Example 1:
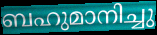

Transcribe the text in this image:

ബഹുമാനിച്ചു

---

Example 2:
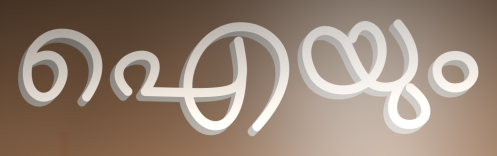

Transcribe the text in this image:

ഐയും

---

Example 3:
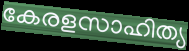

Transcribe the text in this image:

കേരളസാഹിത്യ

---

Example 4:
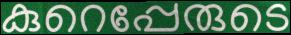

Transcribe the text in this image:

കുറെപ്പേരുടെ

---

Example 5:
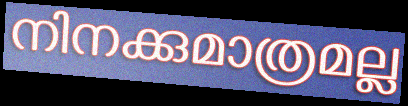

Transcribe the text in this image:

നിനക്കുമാത്രമല്ല